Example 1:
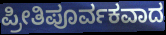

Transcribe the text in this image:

ಪ್ರೀತಿಪೂರ್ವಕವಾದ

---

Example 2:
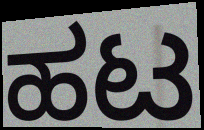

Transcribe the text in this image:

ಹಟ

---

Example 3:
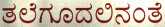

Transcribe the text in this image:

ತಲೆಗೂದಲಿನಂತೆ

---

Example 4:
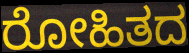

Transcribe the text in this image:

ರೋಹಿತದ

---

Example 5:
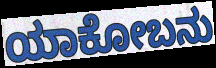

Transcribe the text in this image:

ಯಾಕೋಬನು